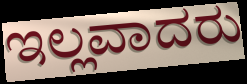
ಇಲ್ಲವಾದರು